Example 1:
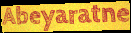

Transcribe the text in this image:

Abeyaratne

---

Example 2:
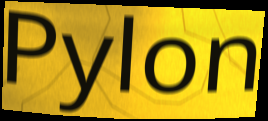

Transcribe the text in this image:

Pylon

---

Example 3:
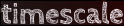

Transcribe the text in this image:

timescale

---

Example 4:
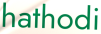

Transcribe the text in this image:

hathodi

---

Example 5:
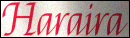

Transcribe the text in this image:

Haraira